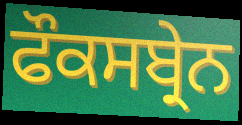
ਫੌਕਸਬ੍ਰੇਨ